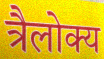
त्रैलोक्य